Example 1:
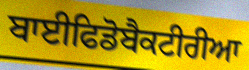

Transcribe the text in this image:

ਬਾਈਫਿਡੋਬੈਕਟੀਰੀਆ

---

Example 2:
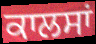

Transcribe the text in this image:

ਕਾਲਸਾਂ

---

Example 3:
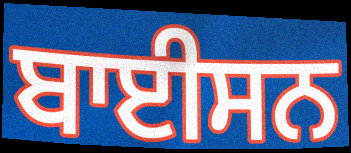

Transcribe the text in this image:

ਬਾਈਸਨ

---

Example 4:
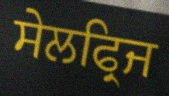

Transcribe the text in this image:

ਸੇਲਫ੍ਰਿਜ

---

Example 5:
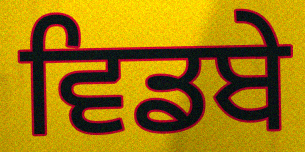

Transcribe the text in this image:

ਵਿਡਬੇ